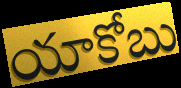
యాకోబు